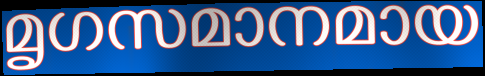
മൃഗസമാനമായ